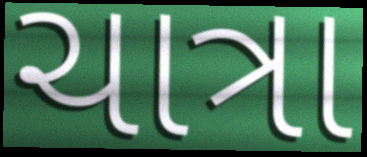
ચાત્રા